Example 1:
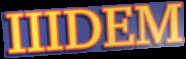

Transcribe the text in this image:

IIIDEM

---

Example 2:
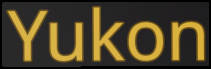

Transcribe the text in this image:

Yukon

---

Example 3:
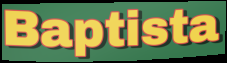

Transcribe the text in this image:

Baptista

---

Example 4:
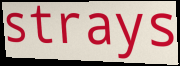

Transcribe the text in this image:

strays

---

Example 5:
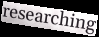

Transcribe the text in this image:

researching